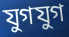
যুগযুগ